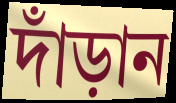
দাঁড়ান